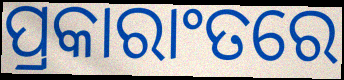
ପ୍ରକାରାଂତରେ